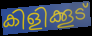
കിളിക്കൂട്